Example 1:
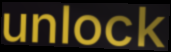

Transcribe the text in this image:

unlock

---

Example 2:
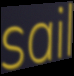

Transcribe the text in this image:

sail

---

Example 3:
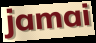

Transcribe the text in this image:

jamai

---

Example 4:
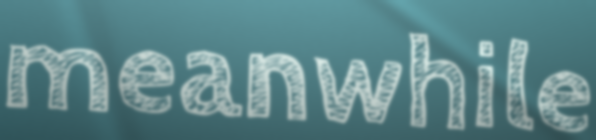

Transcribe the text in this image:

meanwhile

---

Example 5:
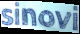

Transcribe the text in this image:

sinovi